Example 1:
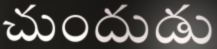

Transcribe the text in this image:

చుందుడు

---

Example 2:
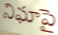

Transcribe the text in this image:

నిఘాపై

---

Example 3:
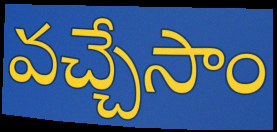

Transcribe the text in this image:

వచ్చేసాం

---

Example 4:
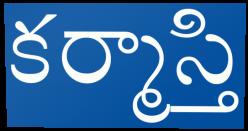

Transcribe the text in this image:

కర్మాస్తి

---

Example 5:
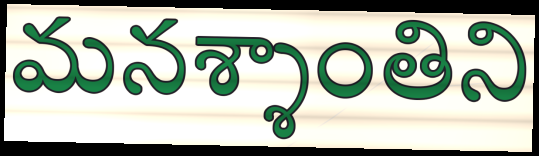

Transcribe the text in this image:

మనశ్శాంతిని